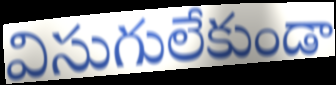
విసుగులేకుండా